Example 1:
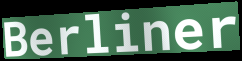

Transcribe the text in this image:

Berliner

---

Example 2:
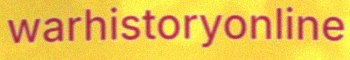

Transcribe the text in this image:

warhistoryonline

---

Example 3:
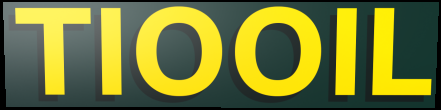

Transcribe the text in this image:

TIOOIL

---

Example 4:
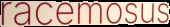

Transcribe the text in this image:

racemosus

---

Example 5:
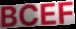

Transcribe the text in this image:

BCEF